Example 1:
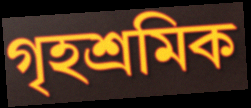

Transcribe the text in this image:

গৃহশ্রমিক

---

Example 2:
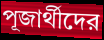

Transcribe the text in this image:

পূজার্থীদের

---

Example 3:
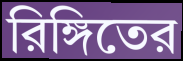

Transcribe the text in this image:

রিঙ্গিতের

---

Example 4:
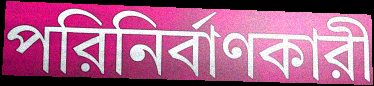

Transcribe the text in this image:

পরিনির্বাণকারী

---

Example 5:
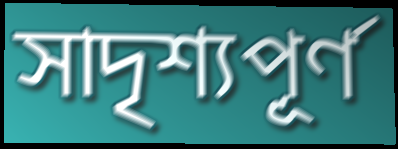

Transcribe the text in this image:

সাদৃশ্যপূর্ণ